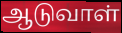
ஆடுவாள்